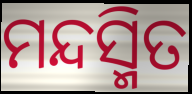
ମନ୍ଦସ୍ମିତ